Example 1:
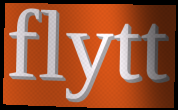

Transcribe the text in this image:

flytt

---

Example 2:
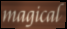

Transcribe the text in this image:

magical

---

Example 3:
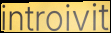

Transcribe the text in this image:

introivit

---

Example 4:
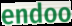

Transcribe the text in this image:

endoo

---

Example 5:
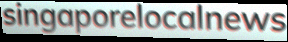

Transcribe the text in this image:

singaporelocalnews